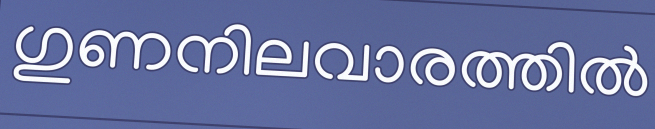
ഗുണനിലവാരത്തിൽ